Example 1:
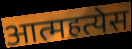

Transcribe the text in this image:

आत्महत्येस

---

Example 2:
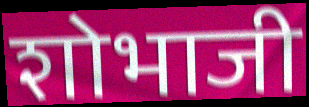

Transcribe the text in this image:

शोभाजी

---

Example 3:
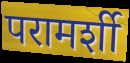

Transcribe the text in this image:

परामर्शी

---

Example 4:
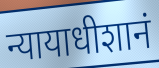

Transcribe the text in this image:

न्यायाधीशानं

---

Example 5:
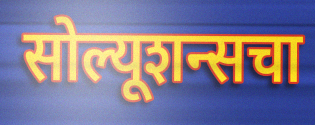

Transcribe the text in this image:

सोल्यूशन्सचा